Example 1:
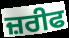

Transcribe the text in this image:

ਜ਼ਰੀਫ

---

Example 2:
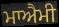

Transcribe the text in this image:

ਮਾਐਮੀ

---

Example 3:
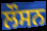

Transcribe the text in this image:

ਲੌਸਨ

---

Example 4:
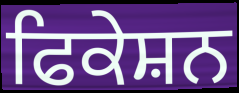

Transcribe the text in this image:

ਫਿਕੇਸ਼ਨ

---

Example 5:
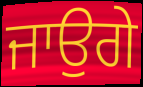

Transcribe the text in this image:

ਜਾਉਗੇ